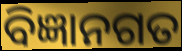
ବିଜ୍ଞାନଗତ